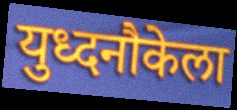
युध्दनौकेला